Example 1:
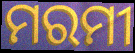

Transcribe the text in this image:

ମରମୀ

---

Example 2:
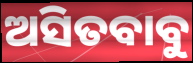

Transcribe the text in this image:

ଅସିତବାବୁ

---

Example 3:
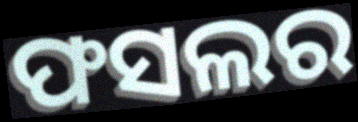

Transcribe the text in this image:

ଫସଲର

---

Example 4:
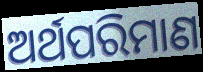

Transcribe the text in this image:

ଅର୍ଥପରିମାଣ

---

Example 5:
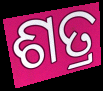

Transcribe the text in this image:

ଶତ୍ର